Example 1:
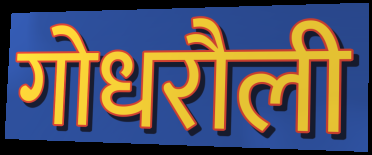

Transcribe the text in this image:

गोधरौली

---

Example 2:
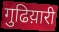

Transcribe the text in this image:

गुढिय़ारी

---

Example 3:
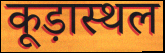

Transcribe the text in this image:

कूड़ास्थल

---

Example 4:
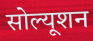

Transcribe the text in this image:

सोल्यूशन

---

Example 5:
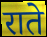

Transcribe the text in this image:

राते